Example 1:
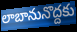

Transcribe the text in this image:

లాబానునొద్దకు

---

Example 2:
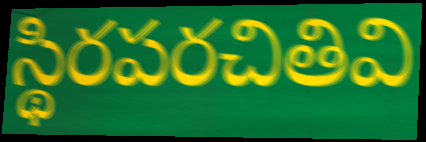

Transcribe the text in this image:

స్థిరపరచితివి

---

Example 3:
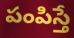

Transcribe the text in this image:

పంపిస్తే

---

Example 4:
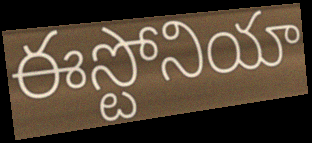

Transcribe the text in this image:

ఈస్టోనియా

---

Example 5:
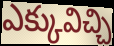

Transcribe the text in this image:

ఎక్కువిచ్చి